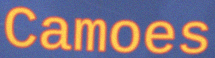
Camoes